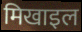
मिखाइल